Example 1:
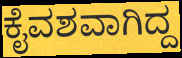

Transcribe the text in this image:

ಕೈವಶವಾಗಿದ್ದ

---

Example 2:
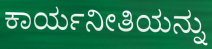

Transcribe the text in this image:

ಕಾರ್ಯನೀತಿಯನ್ನು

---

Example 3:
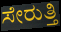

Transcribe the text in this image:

ಸೇರುತ್ತಿ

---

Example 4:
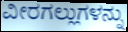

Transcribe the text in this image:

ವೀರಗಲ್ಲುಗಳನ್ನು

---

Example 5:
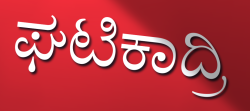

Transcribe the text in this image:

ಘಟಿಕಾದ್ರಿ